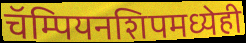
चॅम्पियनशिपमध्येही